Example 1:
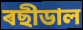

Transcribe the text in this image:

ৰছীডাল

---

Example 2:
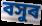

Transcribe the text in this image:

বসুৰ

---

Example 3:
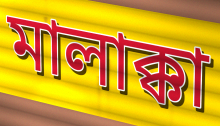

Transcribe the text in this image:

মালাক্কা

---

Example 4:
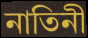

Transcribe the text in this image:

নাতিনী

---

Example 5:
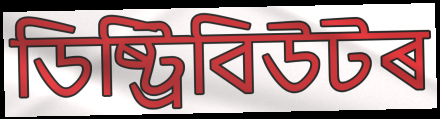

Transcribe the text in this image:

ডিষ্ট্ৰিবিউটৰ